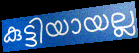
കുട്ടിയായല്ല